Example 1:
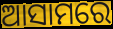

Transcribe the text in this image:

ଆସାମରେ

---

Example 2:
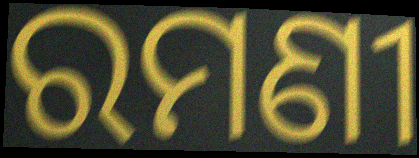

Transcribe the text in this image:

ରମଣୀ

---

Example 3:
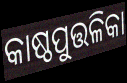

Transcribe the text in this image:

କାଷ୍ଠପୁତ୍ତଳିକା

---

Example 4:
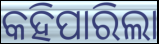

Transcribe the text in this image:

କହିପାରିଲା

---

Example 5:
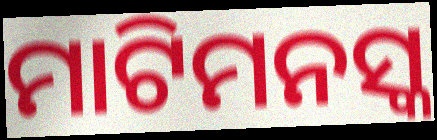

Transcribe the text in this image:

ମାଟିମନସ୍କ